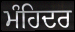
ਮੰਹਿਦਰ